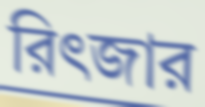
রিৎজার